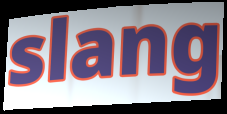
slang